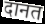
दानत